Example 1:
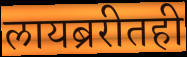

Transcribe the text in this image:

लायब्ररीतही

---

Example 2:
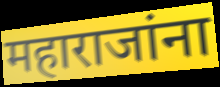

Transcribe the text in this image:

महाराजांना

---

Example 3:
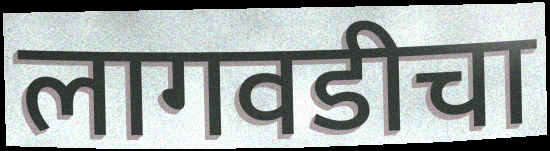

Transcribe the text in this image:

लागवडीचा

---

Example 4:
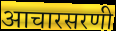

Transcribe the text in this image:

आचारसरणी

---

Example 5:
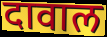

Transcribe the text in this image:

दावाल